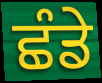
ਛੰਡੇ